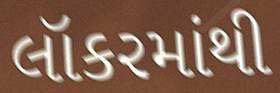
લૉકરમાંથી